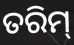
ତରିମ୍